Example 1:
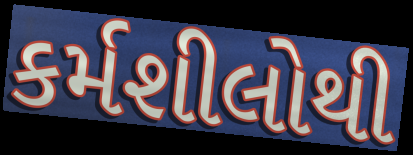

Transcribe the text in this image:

કર્મશીલોથી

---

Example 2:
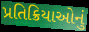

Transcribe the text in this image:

પ્રતિક્રિયાઓનું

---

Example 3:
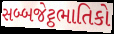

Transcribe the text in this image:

સબ્બજેટ્ઠભાતિકો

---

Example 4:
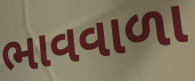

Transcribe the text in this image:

ભાવવાળા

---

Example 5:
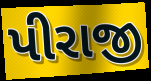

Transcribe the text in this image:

પીરાજી